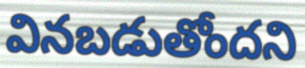
వినబడుతోందని